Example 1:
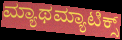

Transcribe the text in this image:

ಮ್ಯಾಥಮ್ಯಾಟಿಕ್ಸ್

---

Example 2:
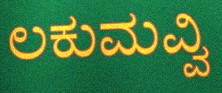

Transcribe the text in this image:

ಲಕುಮವ್ವಿ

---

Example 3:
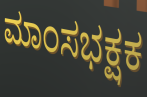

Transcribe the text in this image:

ಮಾಂಸಭಕ್ಷಕ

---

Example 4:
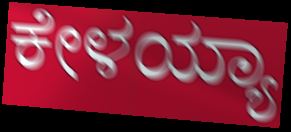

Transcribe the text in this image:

ಕೇಳಯ್ಯಾ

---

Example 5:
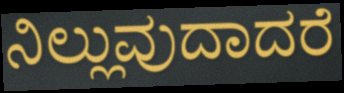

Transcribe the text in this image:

ನಿಲ್ಲುವುದಾದರೆ